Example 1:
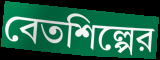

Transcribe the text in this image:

বেতশিল্পের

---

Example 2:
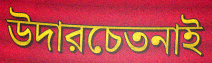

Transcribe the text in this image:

উদারচেতনাই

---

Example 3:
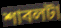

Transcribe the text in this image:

শাবলটা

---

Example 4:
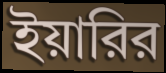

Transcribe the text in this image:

ইয়ারির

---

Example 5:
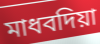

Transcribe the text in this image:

মাধবদিয়া